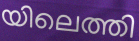
യിലെത്തി